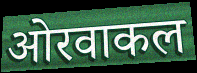
ओरवाकल